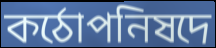
কঠোপনিষদে